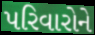
પરિવારોને